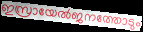
ഇസ്രായേൽജനത്തോടും